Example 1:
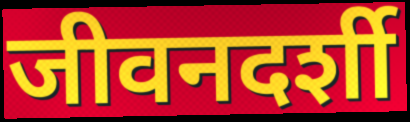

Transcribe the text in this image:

जीवनदर्शी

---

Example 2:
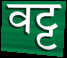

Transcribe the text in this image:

वट्ट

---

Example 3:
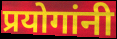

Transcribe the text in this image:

प्रयोगांनी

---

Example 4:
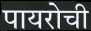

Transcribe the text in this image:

पायरोची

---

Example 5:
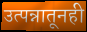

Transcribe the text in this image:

उत्पन्नातूनही